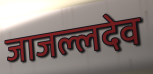
जाजल्लदेव